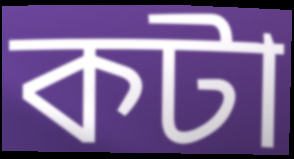
কটা